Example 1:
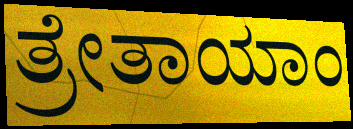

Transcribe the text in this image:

ತ್ರೇತಾಯಾಂ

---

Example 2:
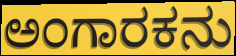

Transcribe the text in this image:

ಅಂಗಾರಕನು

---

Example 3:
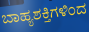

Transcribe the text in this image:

ಬಾಹ್ಯಶಕ್ತಿಗಳಿಂದ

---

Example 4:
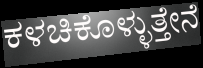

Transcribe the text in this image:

ಕಳಚಿಕೊಳ್ಳುತ್ತೇನೆ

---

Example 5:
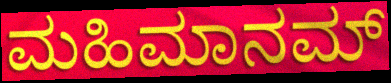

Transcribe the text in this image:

ಮಹಿಮಾನಮ್